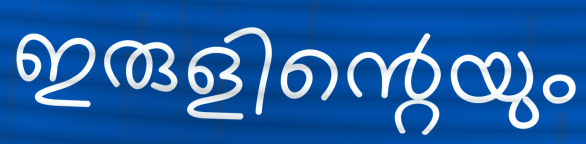
ഇരുളിന്റെയും